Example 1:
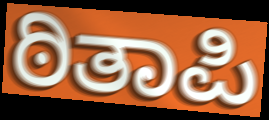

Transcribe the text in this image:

ಠಿತಾಪಿ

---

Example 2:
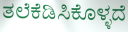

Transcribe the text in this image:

ತಲೆಕೆಡಿಸಿಕೊಳ್ಳದೆ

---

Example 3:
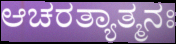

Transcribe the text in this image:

ಆಚರತ್ಯಾತ್ಮನಃ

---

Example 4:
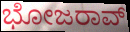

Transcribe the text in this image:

ಭೋಜರಾವ್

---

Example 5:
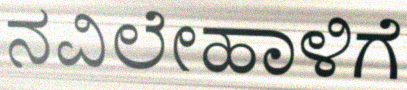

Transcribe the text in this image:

ನವಿಲೇಹಾಳಿಗೆ